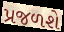
પ્રજળશે